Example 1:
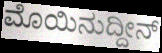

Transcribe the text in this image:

ಮೊಯಿನುದ್ದೀನ್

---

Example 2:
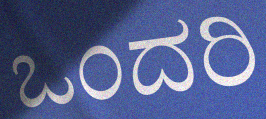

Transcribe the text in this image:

ಒಂದರಿ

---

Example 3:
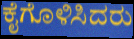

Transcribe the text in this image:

ಕೈಗೊಳಿಸಿದರು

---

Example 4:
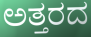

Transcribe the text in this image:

ಅತ್ತರದ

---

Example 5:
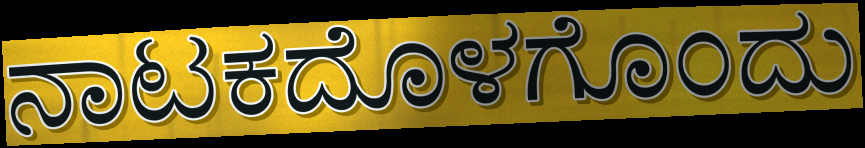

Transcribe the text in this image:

ನಾಟಕದೊಳಗೊಂದು